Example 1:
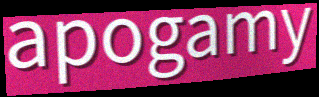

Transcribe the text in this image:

apogamy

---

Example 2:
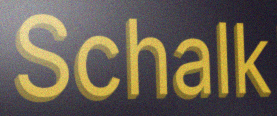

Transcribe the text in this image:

Schalk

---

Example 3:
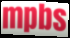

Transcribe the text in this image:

mpbs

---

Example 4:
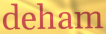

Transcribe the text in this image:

deham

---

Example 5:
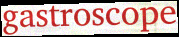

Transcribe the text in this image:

gastroscope